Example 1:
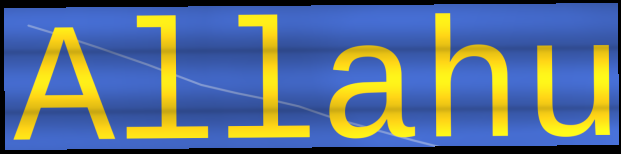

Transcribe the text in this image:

Allahu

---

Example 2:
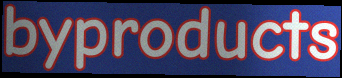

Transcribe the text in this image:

byproducts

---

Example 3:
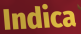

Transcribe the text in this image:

Indica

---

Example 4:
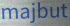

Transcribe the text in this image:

majbut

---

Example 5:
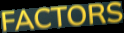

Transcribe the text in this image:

FACTORS